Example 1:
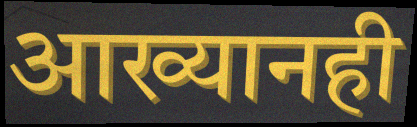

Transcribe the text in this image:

आख्यानही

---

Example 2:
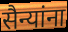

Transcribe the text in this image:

सैन्यांना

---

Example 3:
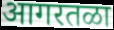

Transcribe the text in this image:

आगरतळा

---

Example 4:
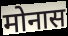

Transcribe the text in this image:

मोनास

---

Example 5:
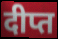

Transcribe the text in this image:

दीप्त